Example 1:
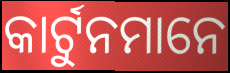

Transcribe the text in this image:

କାର୍ଟୁନମାନେ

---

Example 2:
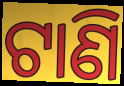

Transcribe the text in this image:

ଟାଣି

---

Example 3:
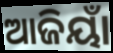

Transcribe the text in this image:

ଆଜିୟାଁ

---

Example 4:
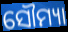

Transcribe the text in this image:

ସୌମ୍ୟା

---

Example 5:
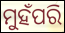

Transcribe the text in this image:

ମୁହଁପରି